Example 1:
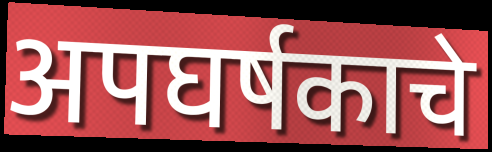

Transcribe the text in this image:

अपघर्षकाचे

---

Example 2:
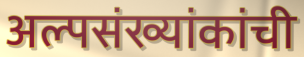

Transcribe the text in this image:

अल्पसंख्यांकांची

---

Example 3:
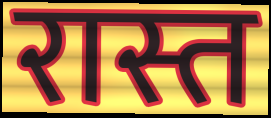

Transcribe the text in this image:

रास्त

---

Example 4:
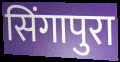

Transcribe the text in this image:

सिंगापुरा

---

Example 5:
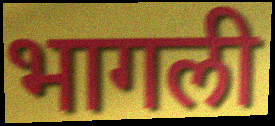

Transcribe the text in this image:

भागली